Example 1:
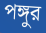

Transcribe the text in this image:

পঙ্গুর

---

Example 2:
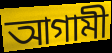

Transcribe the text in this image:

আগামী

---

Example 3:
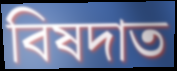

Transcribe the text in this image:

বিষদাত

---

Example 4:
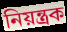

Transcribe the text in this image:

নিয়ন্ত্রক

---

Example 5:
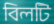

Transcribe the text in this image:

বিলটি